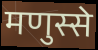
मणुस्से